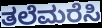
ತಲೆಮರೆಸಿ